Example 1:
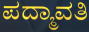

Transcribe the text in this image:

ಪದ್ಮಾವತಿ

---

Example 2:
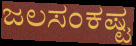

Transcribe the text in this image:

ಜಲಸಂಕಷ್ಟ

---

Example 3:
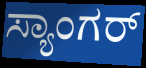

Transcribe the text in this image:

ಸ್ಯಾಂಗರ್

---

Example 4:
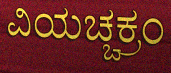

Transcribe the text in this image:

ವಿಯಚ್ಚಕ್ರಂ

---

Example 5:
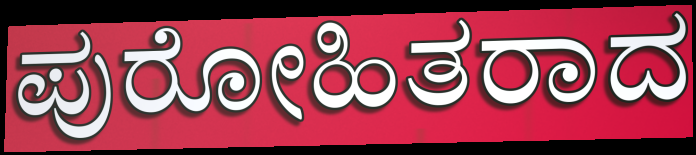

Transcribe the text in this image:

ಪುರೋಹಿತರಾದ